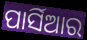
ପାର୍ସିଆର